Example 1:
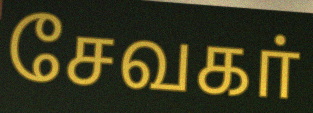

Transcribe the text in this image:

சேவகர்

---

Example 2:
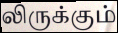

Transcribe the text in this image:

லிருக்கும்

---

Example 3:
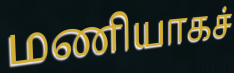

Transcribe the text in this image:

மணியாகச்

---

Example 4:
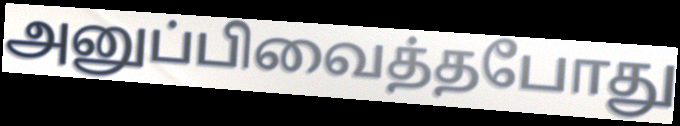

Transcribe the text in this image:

அனுப்பிவைத்தபோது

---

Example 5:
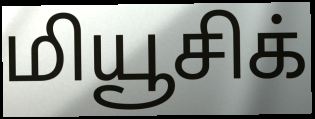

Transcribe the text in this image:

மியூசிக்